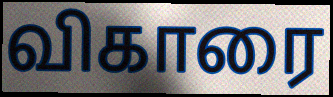
விகாரை